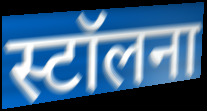
स्टॉलना